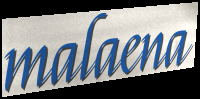
malaena